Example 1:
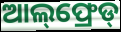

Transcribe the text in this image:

ଆଲ୍‌ଫ୍ରେଡ୍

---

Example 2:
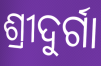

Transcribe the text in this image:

ଶ୍ରୀଦୁର୍ଗା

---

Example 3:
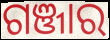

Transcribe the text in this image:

ଗଞ୍ଜାର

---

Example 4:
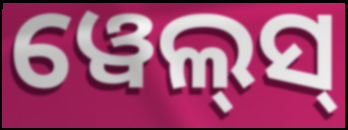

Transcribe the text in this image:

ୱେଲ୍‌ସ୍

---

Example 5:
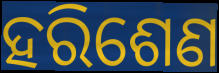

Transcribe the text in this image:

ହରିଶେଣ